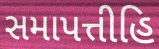
સમાપત્તીહિ